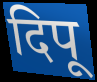
दिपू